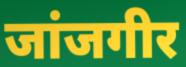
जांजगीर